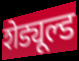
शेड्यूल्ड